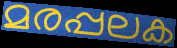
മരപ്പലക